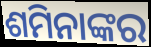
ଶମିନାଙ୍କର